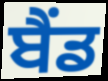
ਬੈਂਡ